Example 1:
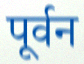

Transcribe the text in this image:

पूर्वन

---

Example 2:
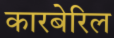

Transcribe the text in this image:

कारबेरिल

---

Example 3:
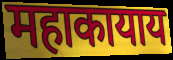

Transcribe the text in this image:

महाकायाय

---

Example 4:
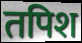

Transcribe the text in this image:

तपिश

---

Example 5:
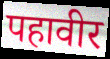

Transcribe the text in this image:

पहावीर